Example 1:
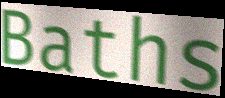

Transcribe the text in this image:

Baths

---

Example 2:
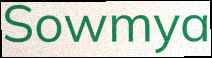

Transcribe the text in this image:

Sowmya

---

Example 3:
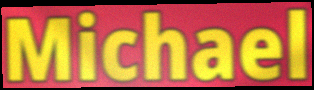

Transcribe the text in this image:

Michael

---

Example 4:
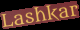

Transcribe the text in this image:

Lashkar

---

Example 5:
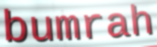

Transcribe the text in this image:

bumrah